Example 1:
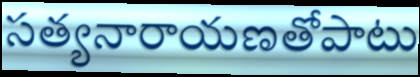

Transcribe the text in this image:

సత్యనారాయణతోపాటు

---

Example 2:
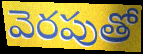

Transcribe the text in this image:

వెరపుతో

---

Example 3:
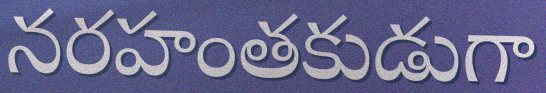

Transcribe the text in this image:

నరహంతకుడుగా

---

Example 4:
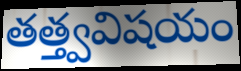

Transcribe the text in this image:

తత్త్వవిషయం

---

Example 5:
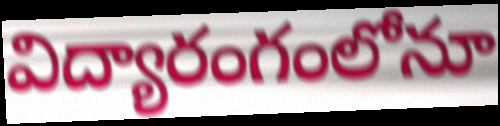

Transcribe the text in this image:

విద్యారంగంలోనూ